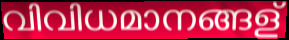
വിവിധമാനങ്ങള്